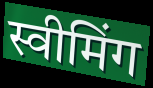
स्वीमिंग